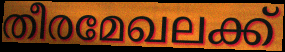
തീരമേഖലക്ക്